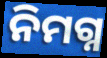
ନିମଗ୍ନ